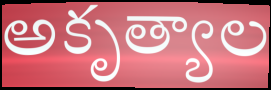
అకృత్యాల